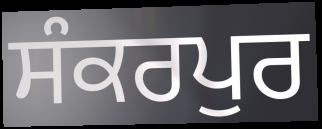
ਸੰਕਰਪੁਰ